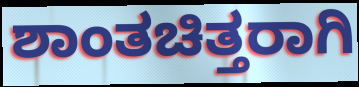
ಶಾಂತಚಿತ್ತರಾಗಿ